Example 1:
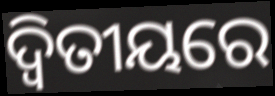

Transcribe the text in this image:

ଦ୍ଵିତୀୟରେ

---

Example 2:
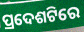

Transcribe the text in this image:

ପ୍ରଦେଶଟିରେ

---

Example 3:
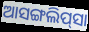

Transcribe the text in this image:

ଆସଙ୍ଗଲିପ୍‌ସା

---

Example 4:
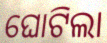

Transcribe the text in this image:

ଘୋଟିଲା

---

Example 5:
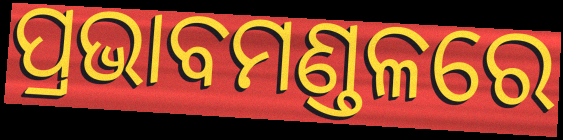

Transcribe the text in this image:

ପ୍ରଭାବମଣ୍ଡଳରେ